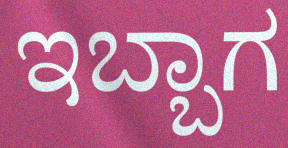
ಇಬ್ಬಾಗ